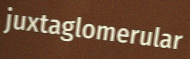
juxtaglomerular